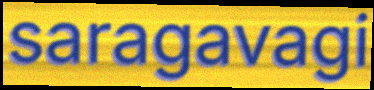
saragavagi